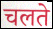
चलते